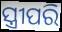
ସ୍ତ୍ରୀପରି